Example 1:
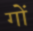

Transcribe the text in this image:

गों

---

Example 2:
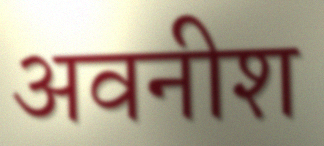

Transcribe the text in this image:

अवनीश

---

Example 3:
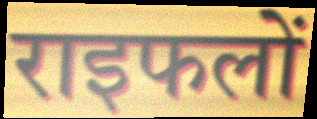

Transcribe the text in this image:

राइफलों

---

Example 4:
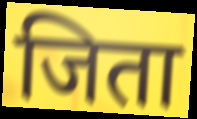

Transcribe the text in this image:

जिता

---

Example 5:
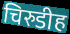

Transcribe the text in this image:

चिरुडीह